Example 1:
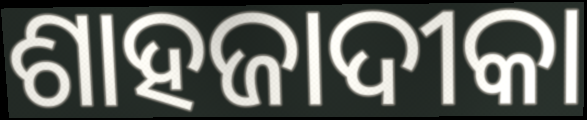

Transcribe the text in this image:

ଶାହଜାଦୀକା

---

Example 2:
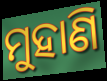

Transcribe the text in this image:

ମୁହାଣି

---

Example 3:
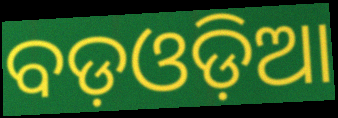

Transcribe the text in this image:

ବଡ଼ଓଡ଼ିଆ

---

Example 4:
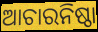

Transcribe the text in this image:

ଆଚାରନିଷ୍ଠା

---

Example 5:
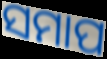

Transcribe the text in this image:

ସମାପ